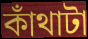
কাঁথাটা